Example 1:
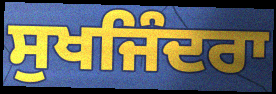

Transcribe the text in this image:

ਸੁਖਜਿੰਦਰਾ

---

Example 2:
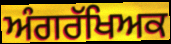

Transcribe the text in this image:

ਅੰਗਰੱਖਿਅਕ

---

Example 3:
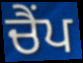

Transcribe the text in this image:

ਚੈਂਪ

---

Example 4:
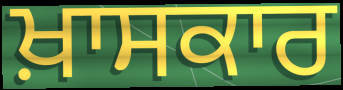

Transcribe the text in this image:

ਖ਼ਾਸਕਾਰ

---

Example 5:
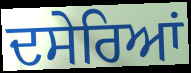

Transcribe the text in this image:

ਦਸੇਰਿਆਂ